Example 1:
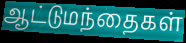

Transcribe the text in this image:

ஆட்டுமந்தைகள்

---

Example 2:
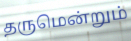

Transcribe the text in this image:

தருமென்றும்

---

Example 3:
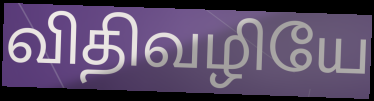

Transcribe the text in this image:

விதிவழியே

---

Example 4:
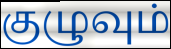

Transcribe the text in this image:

குழுவும்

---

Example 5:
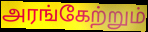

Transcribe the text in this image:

அரங்கேற்றும்